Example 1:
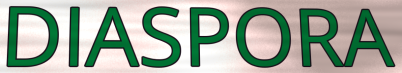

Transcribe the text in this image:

DIASPORA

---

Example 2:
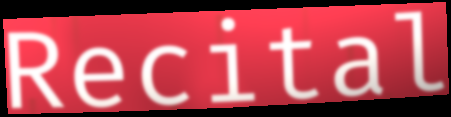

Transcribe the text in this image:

Recital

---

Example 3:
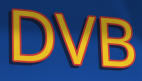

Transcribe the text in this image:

DVB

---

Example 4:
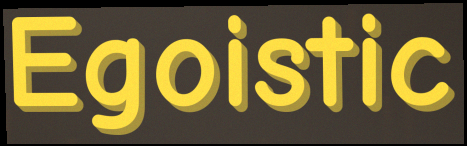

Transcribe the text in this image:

Egoistic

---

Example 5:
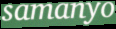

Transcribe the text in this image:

samanyo